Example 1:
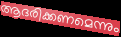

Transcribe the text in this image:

ആദരിക്കണമെന്നും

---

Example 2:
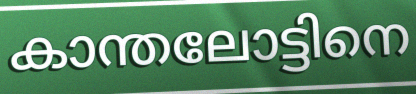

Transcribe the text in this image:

കാന്തലോട്ടിനെ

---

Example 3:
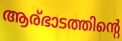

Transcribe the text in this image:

ആര്ഭാടത്തിന്റെ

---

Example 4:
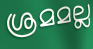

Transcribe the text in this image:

ശ്രമമല്ല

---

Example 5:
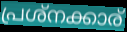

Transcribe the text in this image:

പ്രശ്നക്കാര്